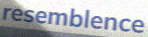
resemblence